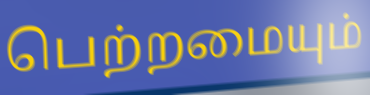
பெற்றமையும்